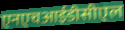
एनएचआईडीसीएल